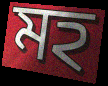
মহ